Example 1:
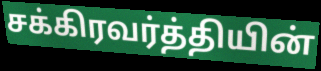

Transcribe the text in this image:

சக்கிரவர்த்தியின்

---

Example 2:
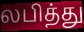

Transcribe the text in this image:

லபித்து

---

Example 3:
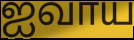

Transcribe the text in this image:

ஐவாய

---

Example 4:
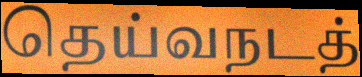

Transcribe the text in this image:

தெய்வநடத்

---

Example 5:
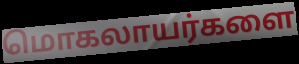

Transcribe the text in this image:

மொகலாயர்களை